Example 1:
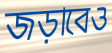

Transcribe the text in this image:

জড়াবেও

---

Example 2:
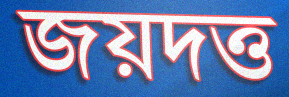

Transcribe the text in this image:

জয়দত্ত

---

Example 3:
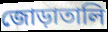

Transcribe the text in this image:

জোড়াতালি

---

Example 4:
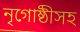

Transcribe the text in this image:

নৃগোষ্ঠীসহ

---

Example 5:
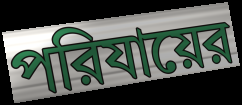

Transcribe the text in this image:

পরিযায়ের